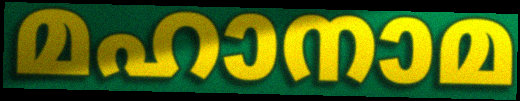
മഹാനാമ